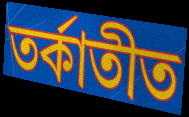
তৰ্কাতীত